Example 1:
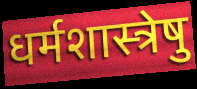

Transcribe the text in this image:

धर्मशास्त्रेषु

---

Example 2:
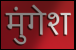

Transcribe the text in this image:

मुंगेश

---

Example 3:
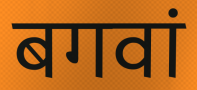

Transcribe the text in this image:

बगवां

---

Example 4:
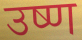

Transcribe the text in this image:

उष्ण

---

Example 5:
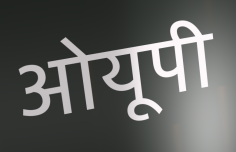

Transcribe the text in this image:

ओयूपी